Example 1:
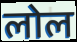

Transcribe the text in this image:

लोल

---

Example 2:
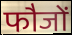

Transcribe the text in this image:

फौजों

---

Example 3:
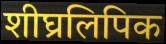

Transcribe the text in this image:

शीघ्रलिपिक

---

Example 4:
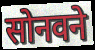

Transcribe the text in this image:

सोनवने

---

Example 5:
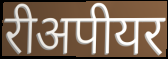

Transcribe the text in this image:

रीअपीयर